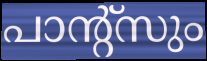
പാന്റ്സും